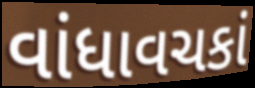
વાંધાવચકાં